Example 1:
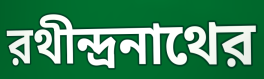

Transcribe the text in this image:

রথীন্দ্রনাথের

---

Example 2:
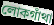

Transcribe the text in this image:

লোকগাঁথা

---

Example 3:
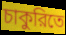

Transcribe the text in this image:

চাকুরিতে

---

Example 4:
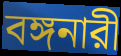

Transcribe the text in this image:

বঙ্গনারী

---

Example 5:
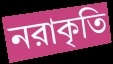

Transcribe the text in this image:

নরাকৃতি